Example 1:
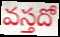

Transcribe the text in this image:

వస్తదో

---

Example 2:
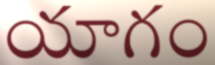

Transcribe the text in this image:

యాగం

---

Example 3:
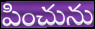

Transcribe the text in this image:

పించును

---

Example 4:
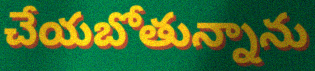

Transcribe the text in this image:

చేయబోతున్నాను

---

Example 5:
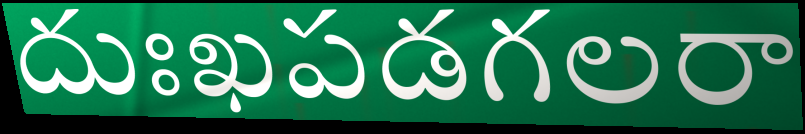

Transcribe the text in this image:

దుఃఖపడగలరా